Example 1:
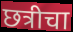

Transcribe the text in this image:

छत्रीचा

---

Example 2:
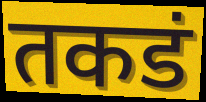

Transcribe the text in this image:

तकडं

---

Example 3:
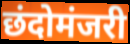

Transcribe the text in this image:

छंदोमंजरी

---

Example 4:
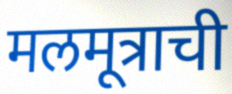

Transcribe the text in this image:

मलमूत्राची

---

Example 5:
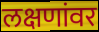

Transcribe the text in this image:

लक्षणांवर